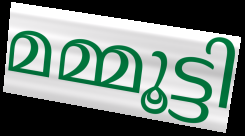
മമ്മൂട്ടി